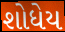
શોધેય